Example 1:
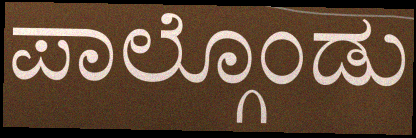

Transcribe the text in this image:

ಪಾಲ್ಗೊಂಡು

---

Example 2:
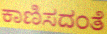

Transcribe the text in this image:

ಕಾಣಿಸದಂತೆ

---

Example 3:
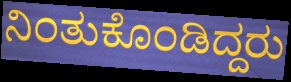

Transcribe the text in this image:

ನಿಂತುಕೊಂಡಿದ್ದರು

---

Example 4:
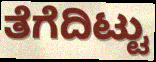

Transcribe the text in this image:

ತೆಗೆದಿಟ್ಟು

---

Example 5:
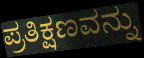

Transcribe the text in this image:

ಪ್ರತಿಕ್ಷಣವನ್ನು